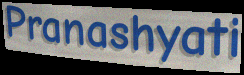
Pranashyati